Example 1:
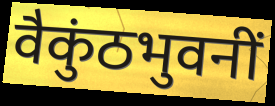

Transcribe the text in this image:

वैकुंठभुवनीं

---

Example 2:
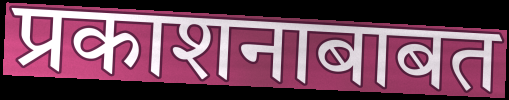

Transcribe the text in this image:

प्रकाशनाबाबत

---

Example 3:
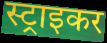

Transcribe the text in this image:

स्ट्राइकर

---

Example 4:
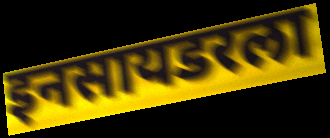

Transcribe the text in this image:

इनसायडरला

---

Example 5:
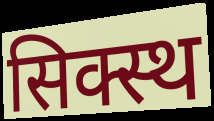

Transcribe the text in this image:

सिक्स्थ